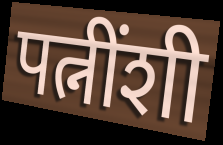
पत्नींशी